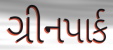
ગ્રીનપાર્ક